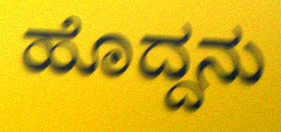
ಹೊದ್ದನು